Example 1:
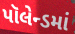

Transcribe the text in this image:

પૉલેન્ડમાં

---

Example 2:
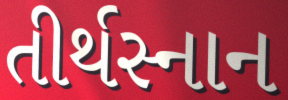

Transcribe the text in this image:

તીર્થસ્નાન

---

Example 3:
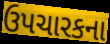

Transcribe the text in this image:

ઉપચારકના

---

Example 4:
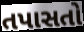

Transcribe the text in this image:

તપાસતો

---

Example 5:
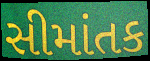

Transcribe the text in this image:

સીમાંતક